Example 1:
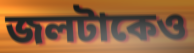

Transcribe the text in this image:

জলটাকেও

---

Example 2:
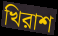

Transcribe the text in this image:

খিরাশ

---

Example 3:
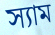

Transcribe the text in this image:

স্যাম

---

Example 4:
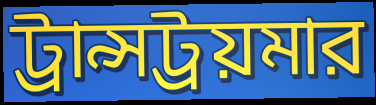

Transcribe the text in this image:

ট্রান্সট্রয়মার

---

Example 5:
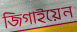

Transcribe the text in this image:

জিগাইয়েন